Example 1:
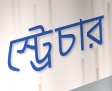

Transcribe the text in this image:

স্ট্রেচার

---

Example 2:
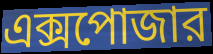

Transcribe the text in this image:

এক্সপোজার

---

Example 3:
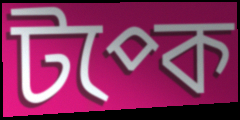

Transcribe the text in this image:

টপ্কে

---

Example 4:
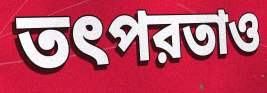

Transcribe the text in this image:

তৎপরতাও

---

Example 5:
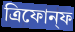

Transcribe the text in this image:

ত্রিফোন্ফ